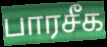
பாரசீக